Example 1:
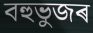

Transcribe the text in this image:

বহুভুজৰ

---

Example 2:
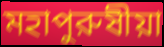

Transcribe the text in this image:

মহাপুৰুষীয়া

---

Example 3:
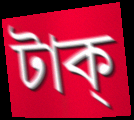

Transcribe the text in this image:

টাক্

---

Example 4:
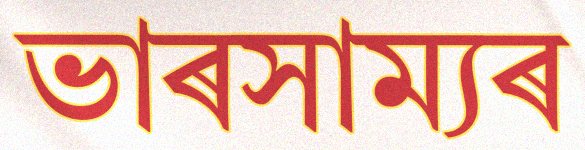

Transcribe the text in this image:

ভাৰসাম্যৰ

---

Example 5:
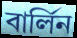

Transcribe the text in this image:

বাৰ্লিন